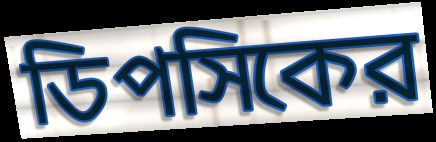
ডিপসিকের